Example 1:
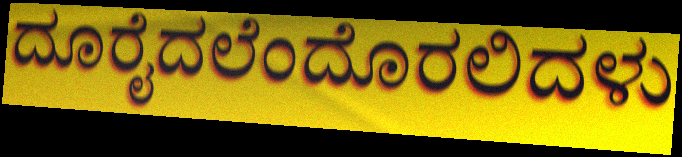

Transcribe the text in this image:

ದೂರೈದಲೆಂದೊರಲಿದಳು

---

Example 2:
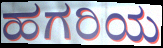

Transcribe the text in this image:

ಹಗರಿಯ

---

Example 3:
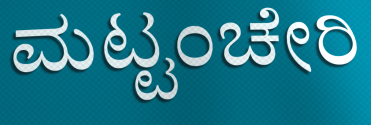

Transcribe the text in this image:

ಮಟ್ಟಂಚೇರಿ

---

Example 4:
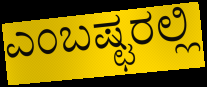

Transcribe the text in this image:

ಎಂಬಷ್ಟರಲ್ಲಿ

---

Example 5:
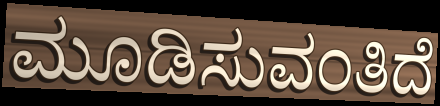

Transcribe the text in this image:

ಮೂಡಿಸುವಂತಿದೆ